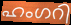
ഹംഗറി